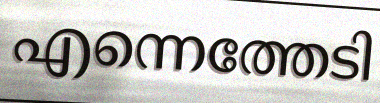
എന്നെത്തേടി